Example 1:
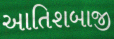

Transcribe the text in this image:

આતિશબાજી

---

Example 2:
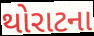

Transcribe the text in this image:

થોરાટના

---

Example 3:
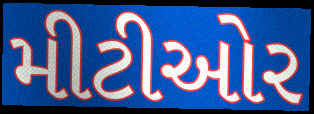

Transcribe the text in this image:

મીટીઓર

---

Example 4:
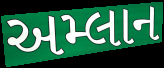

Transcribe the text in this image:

અમ્લાન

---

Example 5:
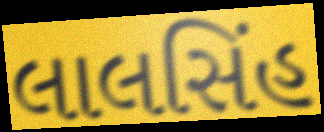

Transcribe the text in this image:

લાલસિંહ